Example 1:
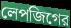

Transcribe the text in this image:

লেপজিগের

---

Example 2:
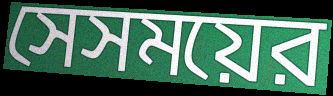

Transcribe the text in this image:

সেসময়ের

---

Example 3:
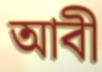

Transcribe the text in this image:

আবী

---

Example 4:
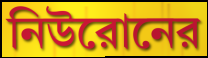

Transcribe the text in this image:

নিউরোনের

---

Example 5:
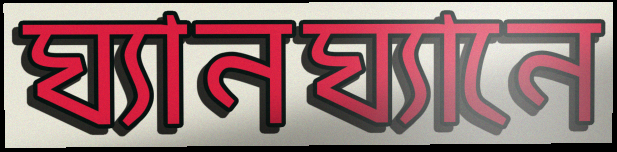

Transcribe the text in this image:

ঘ্যানঘ্যানে